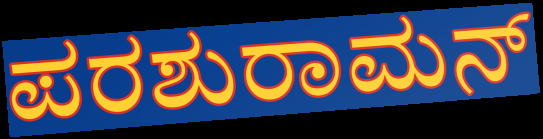
ಪರಶುರಾಮನ್